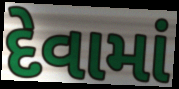
દેવામાં